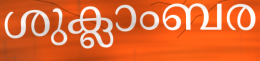
ശുക്ലാംബര